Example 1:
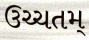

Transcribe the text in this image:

ઉચ્ચતમ્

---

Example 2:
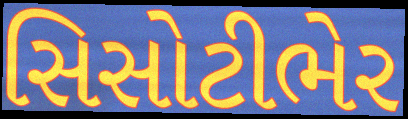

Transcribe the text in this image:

સિસોટીભેર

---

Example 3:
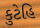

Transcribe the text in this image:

કુટેહિ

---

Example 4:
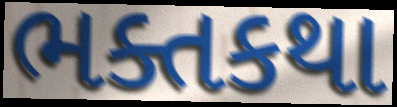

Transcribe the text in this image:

ભક્તકથા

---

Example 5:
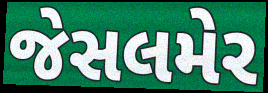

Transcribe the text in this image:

જેસલમેર